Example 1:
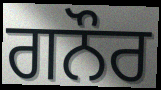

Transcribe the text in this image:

ਗਨੌਰ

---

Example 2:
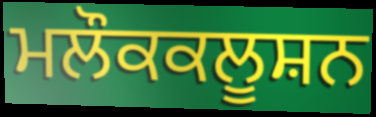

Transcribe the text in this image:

ਮਲੌਕਕਲੂਸ਼ਨ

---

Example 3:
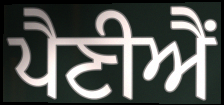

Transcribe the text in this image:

ਪੈਣੀਐਂ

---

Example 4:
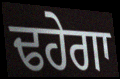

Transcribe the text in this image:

ਢਹੇਗਾ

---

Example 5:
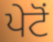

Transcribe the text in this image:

ਪੇਟੋਂ